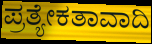
ಪ್ರತ್ಯೇಕತಾವಾದಿ